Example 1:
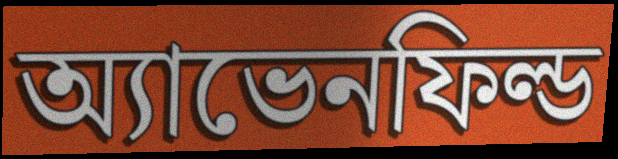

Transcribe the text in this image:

অ্যাভেনফিল্ড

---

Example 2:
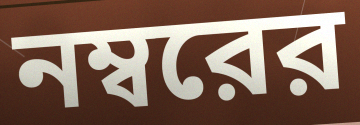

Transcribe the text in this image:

নম্বরের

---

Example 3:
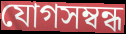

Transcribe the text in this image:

যোগসম্বন্ধ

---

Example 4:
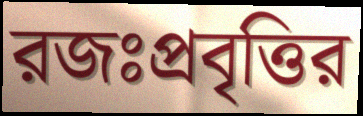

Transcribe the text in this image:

রজঃপ্রবৃত্তির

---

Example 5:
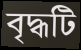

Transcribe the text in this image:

বৃদ্ধটি